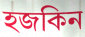
হজকিন